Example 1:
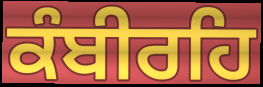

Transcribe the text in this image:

ਕੰਬੀਰਹਿ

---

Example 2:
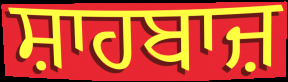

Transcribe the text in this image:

ਸ਼ਾਹਬਾਜ਼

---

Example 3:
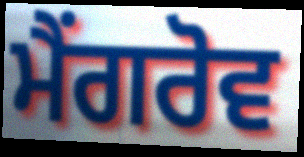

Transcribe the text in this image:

ਮੈਂਗਰੋਵ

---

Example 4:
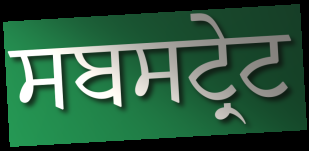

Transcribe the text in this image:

ਸਬਸਟ੍ਰੇਟ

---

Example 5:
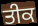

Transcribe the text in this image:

ਤੀਕ